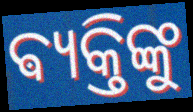
ଵ୍ୟକ୍ତିଙ୍କୁ